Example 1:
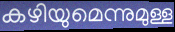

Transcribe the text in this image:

കഴിയുമെന്നുമുള്ള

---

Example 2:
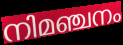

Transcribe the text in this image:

നിമഞ്ചനം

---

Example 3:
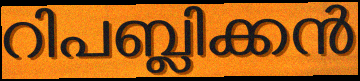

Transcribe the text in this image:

റിപബ്ലിക്കൻ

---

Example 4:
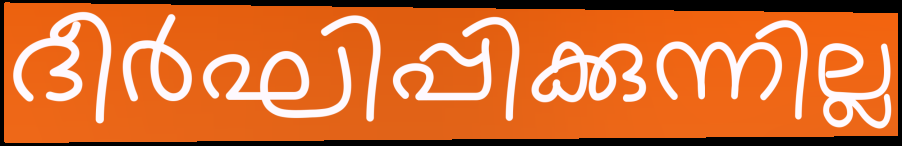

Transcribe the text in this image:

ദീർഘിപ്പിക്കുന്നില്ല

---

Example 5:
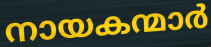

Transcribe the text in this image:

നായകന്മാർ